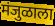
मंजुळाला